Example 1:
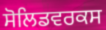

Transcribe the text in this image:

ਸੋਲਿਡਵਰਕਸ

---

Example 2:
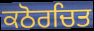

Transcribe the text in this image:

ਕਠੋਰਚਿਤ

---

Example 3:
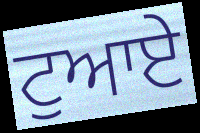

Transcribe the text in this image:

ਟੁਆਏ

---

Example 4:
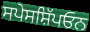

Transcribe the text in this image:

ਸਪੇਸਸ਼ਿੱਪਓਨ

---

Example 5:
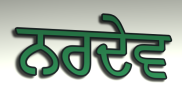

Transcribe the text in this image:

ਨਰਦੇਵ